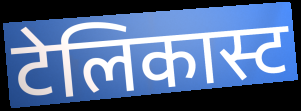
टेलिकास्ट